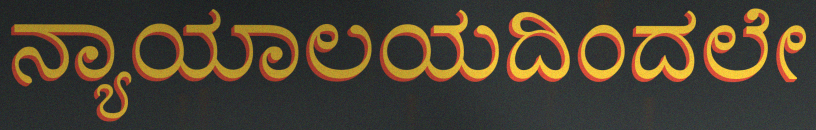
ನ್ಯಾಯಾಲಯದಿಂದಲೇ